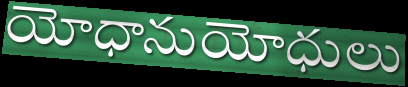
యోధానుయోధులు